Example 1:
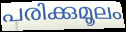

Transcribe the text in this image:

പരിക്കുമൂലം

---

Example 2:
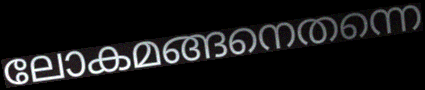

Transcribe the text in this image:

ലോകമങ്ങനെതന്നെ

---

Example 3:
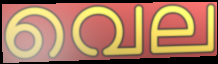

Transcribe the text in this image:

വെല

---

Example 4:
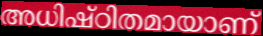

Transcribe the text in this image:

അധിഷ്ഠിതമായാണ്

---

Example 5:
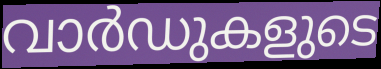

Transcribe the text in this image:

വാർഡുകളുടെ